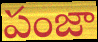
పంజా